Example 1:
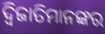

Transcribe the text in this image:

ଦ୍ୱିଜାତିମାନଙ୍କର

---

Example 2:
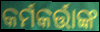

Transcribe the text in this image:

କର୍ମକର୍ତ୍ତାଙ୍କ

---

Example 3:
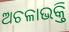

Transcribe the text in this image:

ଅଚଳାଭକ୍ତି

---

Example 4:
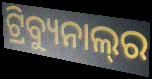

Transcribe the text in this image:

ଟ୍ରିବ୍ୟୁନାଲ୍‍ର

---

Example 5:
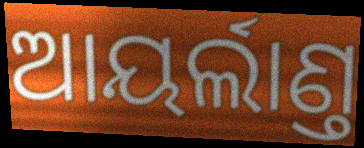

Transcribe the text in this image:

ଆୟର୍ଲାଣ୍ତ